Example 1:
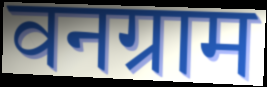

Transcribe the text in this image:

वनग्राम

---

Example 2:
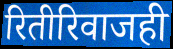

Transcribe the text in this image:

रितीरिवाजही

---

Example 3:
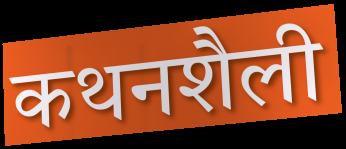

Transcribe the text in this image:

कथनशैली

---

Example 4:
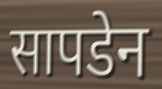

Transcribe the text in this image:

सापडेन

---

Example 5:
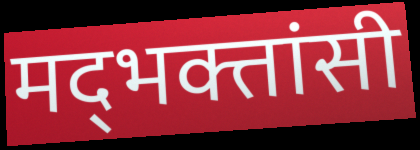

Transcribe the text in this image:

मद्भक्तांसी